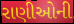
રાણીઓની